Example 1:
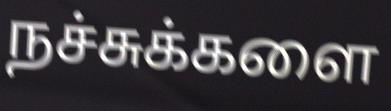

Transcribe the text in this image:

நச்சுக்களை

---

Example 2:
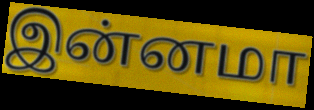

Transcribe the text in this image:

இன்னமா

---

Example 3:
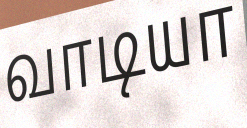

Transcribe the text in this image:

வாடியா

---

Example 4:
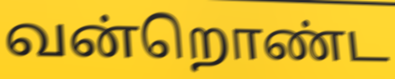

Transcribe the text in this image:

வன்றொண்ட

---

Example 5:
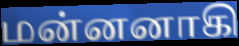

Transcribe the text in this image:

மன்னனாகி